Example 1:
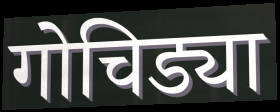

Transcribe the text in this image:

गोचिड्या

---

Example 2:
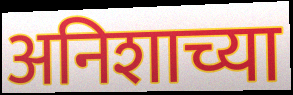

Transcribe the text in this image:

अनिशाच्या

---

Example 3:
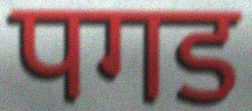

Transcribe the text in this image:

पगड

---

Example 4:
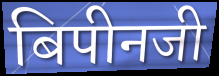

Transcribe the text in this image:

बिपीनजी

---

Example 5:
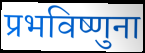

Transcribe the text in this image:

प्रभविष्णुना